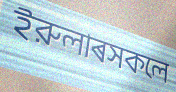
ইৰুলাৰসকলে